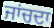
ਜਾਂਚਦਾ